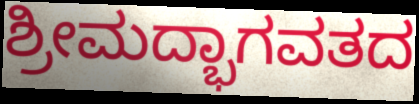
ಶ್ರೀಮದ್ಭಾಗವತದ